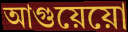
আগুয়েয়ো